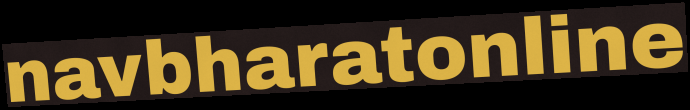
navbharatonline